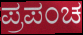
ಪ್ರಪಂಚ